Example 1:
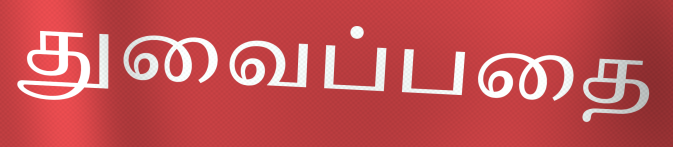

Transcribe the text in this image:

துவைப்பதை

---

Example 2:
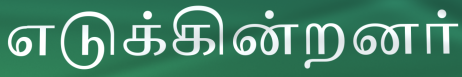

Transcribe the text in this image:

எடுக்கின்றனர்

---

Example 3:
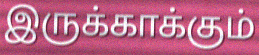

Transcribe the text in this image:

இருக்காக்கும்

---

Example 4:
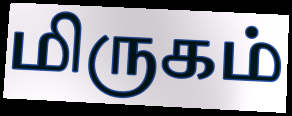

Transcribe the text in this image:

மிருகம்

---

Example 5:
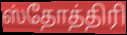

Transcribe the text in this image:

ஸ்தோத்திரி